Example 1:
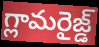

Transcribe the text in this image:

గ్లామరైజ్డ్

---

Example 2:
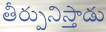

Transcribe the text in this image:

తీర్పునిస్తాడు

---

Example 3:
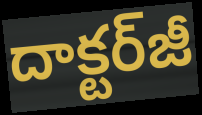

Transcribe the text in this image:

దాక్టర్‌జీ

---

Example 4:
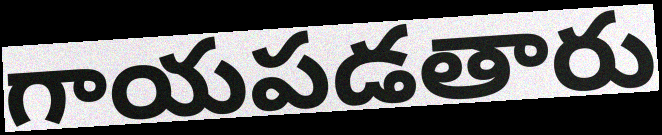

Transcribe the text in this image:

గాయపడతారు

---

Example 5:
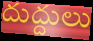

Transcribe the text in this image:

దుద్దులు